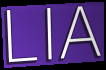
LIA